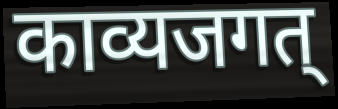
काव्यजगत्